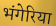
भंगेरिया